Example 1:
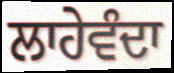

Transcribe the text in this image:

ਲਾਹੇਵੰਦਾ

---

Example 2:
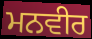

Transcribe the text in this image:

ਮਨਵੀਰ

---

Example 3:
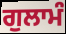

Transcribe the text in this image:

ਗੁਲਾਮੰ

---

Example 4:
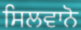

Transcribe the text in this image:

ਸਿਲਵਾਨੋ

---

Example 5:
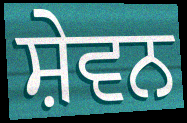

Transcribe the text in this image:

ਸ਼ੇਵਨ